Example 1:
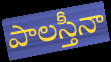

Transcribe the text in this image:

పాలస్తీనా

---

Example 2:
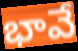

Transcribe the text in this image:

భావే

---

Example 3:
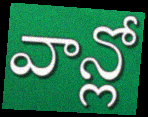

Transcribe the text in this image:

వాన్లో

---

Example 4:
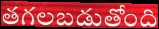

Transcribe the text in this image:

తగలబడుతోంది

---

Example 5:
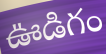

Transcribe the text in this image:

ఊడిగం